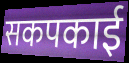
सकपकाई